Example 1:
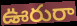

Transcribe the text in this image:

ఊరురా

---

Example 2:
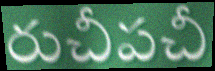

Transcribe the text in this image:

రుచీపచీ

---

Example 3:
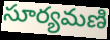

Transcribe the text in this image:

సూర్యమణి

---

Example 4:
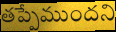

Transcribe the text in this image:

తప్పేముందని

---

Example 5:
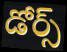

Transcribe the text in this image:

డోర్స్